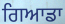
ਗਿਆਡਾ